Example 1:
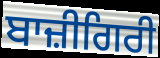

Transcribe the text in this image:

ਬਾਜ਼ੀਗਿਰੀ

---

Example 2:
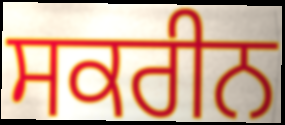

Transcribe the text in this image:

ਸਕਰੀਨ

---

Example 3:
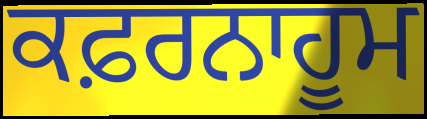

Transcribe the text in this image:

ਕਫ਼ਰਨਾਹੂਮ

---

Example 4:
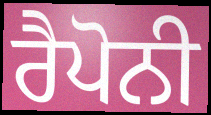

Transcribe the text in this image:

ਰੈਪੋਨੀ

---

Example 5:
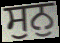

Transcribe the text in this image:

ਸੁਨੁ